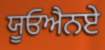
ਯੂਓਐਨਏ